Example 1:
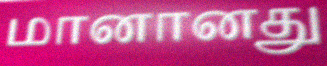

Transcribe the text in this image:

மானானது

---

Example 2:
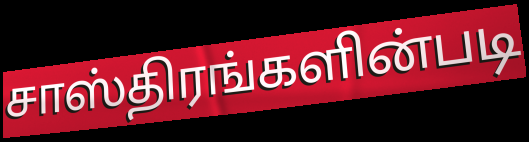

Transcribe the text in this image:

சாஸ்திரங்களின்படி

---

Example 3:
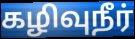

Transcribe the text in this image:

கழிவுநீர்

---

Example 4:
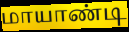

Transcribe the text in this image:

மாயாண்டி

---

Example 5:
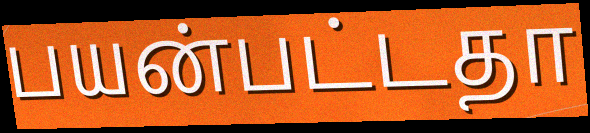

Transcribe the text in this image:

பயன்பட்டதா